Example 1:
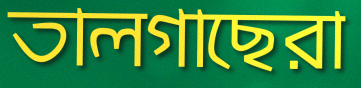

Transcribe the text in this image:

তালগাছেরা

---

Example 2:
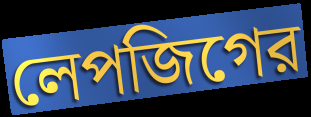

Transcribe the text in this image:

লেপজিগের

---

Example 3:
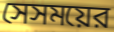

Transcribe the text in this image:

সেসময়ের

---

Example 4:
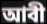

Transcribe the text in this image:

আবী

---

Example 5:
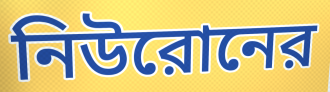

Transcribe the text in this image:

নিউরোনের